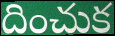
దించుక